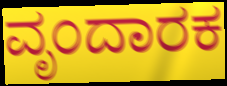
ವೃಂದಾರಕ